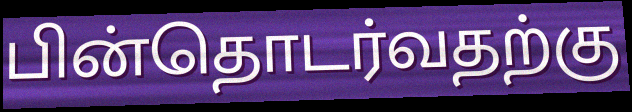
பின்தொடர்வதற்கு